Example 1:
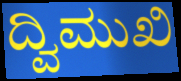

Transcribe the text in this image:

ದ್ವಿಮುಖಿ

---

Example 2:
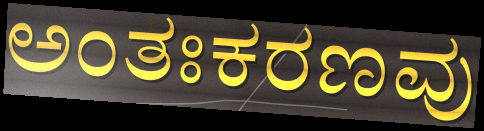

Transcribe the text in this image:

ಅಂತಃಕರಣವು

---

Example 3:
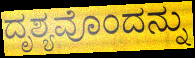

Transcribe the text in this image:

ದೃಶ್ಯವೊಂದನ್ನು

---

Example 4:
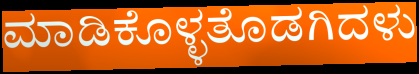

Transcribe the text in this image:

ಮಾಡಿಕೊಳ್ಳತೊಡಗಿದಳು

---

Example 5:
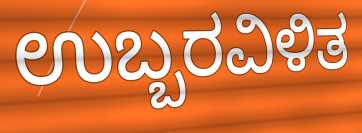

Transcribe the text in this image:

ಉಬ್ಬರವಿಳಿತ